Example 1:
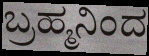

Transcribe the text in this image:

ಬ್ರಹ್ಮನಿಂದ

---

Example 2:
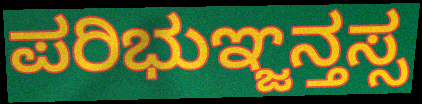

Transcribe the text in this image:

ಪರಿಭುಞ್ಜನ್ತಸ್ಸ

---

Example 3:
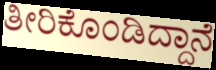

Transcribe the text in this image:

ತೀರಿಕೊಂಡಿದ್ದಾನೆ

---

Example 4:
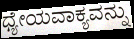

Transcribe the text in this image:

ಧ್ಯೇಯವಾಕ್ಯವನ್ನು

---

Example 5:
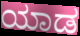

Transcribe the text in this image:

ಯಾಡ